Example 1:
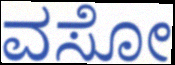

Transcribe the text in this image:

ವಸೋ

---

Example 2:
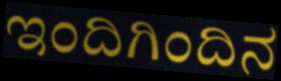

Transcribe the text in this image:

ಇಂದಿಗಿಂದಿನ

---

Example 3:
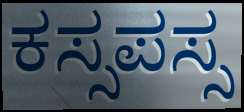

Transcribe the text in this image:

ಕಸ್ಸಪಸ್ಸ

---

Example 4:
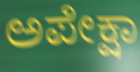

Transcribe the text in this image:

ಅಪೇಕ್ಷಾ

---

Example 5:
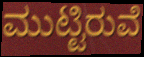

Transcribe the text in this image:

ಮುಟ್ಟಿರುವೆ